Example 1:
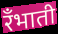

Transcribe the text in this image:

रँभाती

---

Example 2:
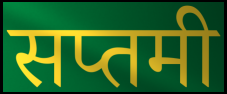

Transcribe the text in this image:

सप्तमी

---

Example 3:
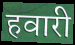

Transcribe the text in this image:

हवारी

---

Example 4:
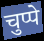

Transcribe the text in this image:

चुप्पे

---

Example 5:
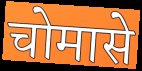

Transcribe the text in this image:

चोमासे